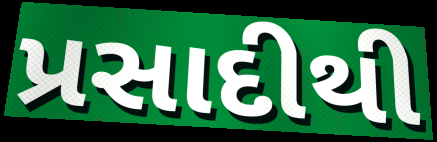
પ્રસાદીથી